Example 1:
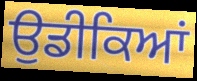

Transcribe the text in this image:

ਉਡੀਕਿਆਂ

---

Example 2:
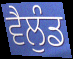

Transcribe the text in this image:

ਵੈਲੁੰਡ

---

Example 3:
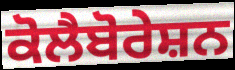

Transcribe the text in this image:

ਕੋਲੈਬੋਰੇਸ਼ਨ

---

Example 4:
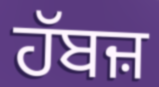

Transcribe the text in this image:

ਹੱਬਜ਼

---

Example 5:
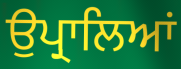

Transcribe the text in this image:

ਉਪ੍ਰਾਲਿਆਂ